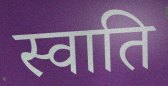
स्वाति